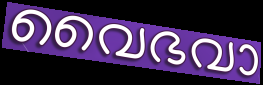
വൈഭവാ